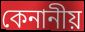
কেনানীয়